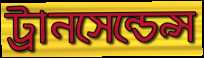
ট্রানসেন্ডেন্স